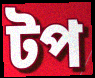
টপ